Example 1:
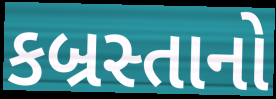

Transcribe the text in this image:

કબ્રસ્તાનો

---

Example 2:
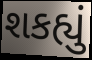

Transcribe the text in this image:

શકહ્યું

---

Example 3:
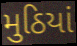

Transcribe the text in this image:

મુઠિયાં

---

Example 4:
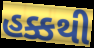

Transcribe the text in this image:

હક્કથી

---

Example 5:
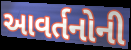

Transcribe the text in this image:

આવર્તનોની